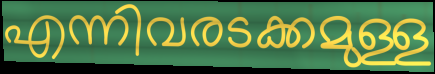
എന്നിവരടക്കമുള്ള